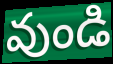
వుండి